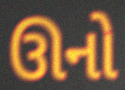
ઊનો